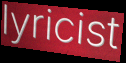
lyricist